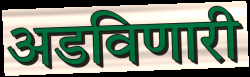
अडविणारी